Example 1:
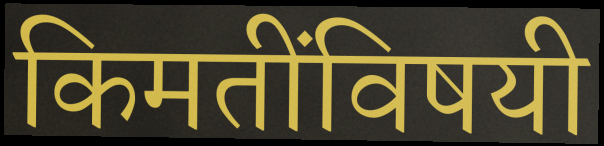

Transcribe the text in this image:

किमतींविषयी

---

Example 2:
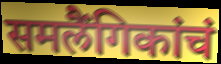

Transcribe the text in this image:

समलैंगिकांचं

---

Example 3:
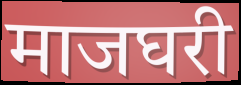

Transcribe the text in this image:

माजघरी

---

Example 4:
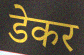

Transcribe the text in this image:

डेकर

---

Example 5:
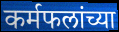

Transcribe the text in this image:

कर्मफलांच्या